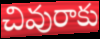
చివురాకు